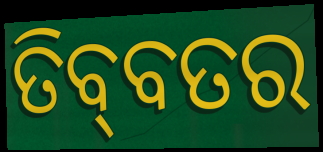
ତିବ୍‌ବତର